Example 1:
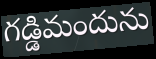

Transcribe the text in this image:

గడ్డిమందును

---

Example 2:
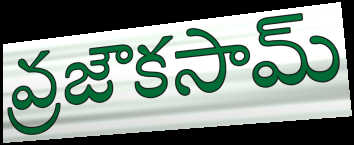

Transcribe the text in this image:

వ్రజౌకసామ్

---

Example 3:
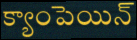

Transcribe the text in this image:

క్యాంపెయిన్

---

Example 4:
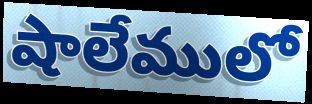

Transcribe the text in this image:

షాలేములో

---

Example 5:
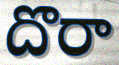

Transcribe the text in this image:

దొరా